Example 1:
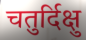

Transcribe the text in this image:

चतुर्दिक्षु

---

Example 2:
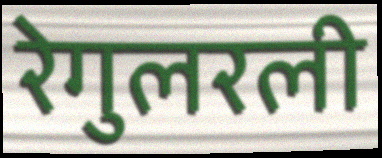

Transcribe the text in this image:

रेगुलरली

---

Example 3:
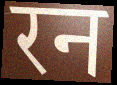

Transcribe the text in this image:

रन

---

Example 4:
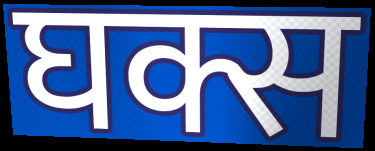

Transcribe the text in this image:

घक्स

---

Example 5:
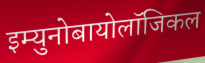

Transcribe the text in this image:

इम्युनोबायोलॉजिकल